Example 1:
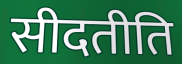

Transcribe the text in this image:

सीदतीति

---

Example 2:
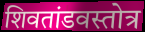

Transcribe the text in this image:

शिवतांडवस्तोत्र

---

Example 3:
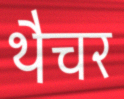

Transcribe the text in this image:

थैचर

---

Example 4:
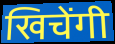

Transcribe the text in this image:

खिचेंगी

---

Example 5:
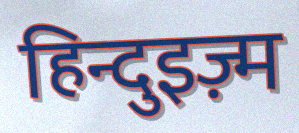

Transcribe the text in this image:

हिन्दुइज़्म